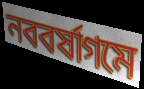
নববর্ষাগমে